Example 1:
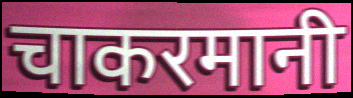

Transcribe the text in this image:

चाकरमानी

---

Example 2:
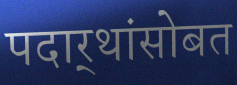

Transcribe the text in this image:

पदार्थांसोबत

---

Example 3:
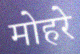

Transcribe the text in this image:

मोहरे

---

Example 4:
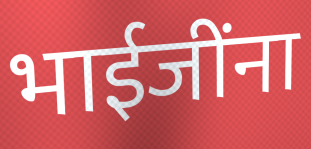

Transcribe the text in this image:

भाईजींना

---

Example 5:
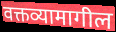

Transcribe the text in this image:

वक्तव्यामागील